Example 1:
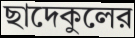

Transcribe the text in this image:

ছাদেকুলের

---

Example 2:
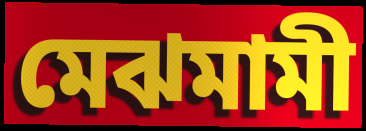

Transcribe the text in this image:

মেঝমামী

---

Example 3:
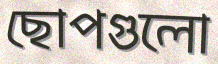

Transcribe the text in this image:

ছোপগুলো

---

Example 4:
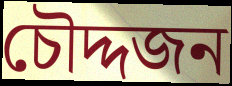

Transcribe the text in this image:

চৌদ্দজন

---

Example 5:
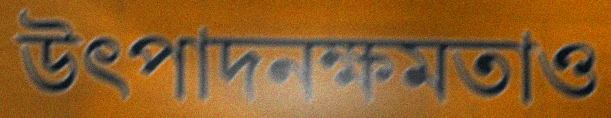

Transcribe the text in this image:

উৎপাদনক্ষমতাও